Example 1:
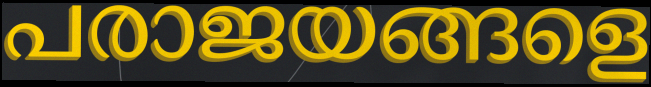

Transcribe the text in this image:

പരാജയങ്ങളെ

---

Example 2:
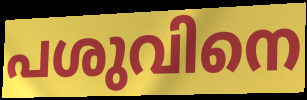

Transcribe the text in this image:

പശുവിനെ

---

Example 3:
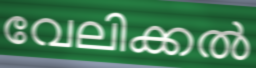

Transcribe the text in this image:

വേലിക്കൽ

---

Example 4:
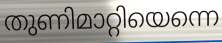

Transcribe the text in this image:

തുണിമാറ്റിയെന്നെ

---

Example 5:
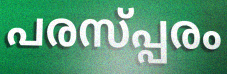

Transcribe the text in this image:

പരസ്പ്പരം